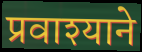
प्रवाश्याने